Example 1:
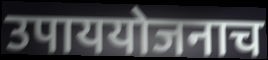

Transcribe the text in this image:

उपाययोजनाच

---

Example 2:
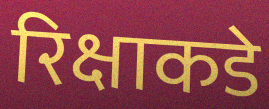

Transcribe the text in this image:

रिक्षाकडे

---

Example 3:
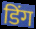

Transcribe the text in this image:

डिंग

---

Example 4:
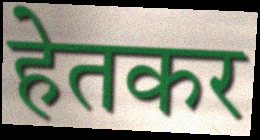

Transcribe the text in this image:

हेतकर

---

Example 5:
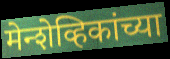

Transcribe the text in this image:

मेन्शेव्हिकांच्या